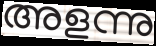
അളന്നു